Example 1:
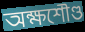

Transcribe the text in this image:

অক্ষশৌণ্ড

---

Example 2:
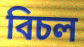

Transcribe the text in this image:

বিচল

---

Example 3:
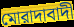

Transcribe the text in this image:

মোরাদাবাদী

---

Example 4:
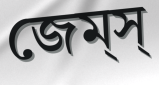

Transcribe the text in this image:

জেম্স্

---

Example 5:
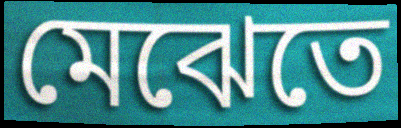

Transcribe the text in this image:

মেঝেতে